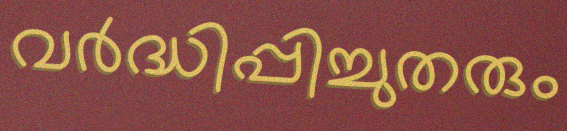
വർദ്ധിപ്പിച്ചുതരും